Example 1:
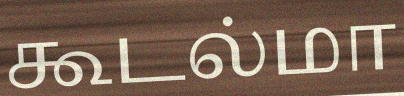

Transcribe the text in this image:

கூடல்மா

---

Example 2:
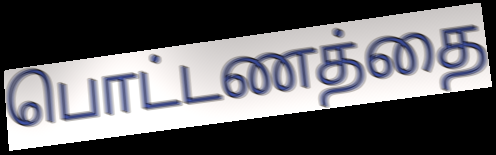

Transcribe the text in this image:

பொட்டணத்தை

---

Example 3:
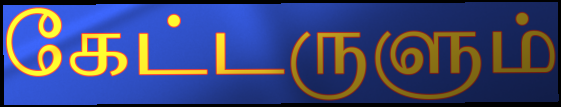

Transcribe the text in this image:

கேட்டருளும்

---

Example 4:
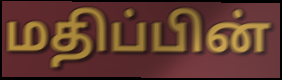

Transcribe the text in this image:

மதிப்பின்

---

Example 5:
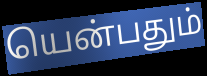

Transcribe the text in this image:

யென்பதும்